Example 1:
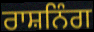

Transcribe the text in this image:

ਰਾਸ਼ਨਿੰਗ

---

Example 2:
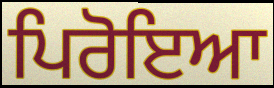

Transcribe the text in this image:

ਪਿਰੋਇਆ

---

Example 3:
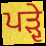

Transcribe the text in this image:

ਪੜ੍ਦੇ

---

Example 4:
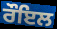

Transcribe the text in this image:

ਰੌਇਲ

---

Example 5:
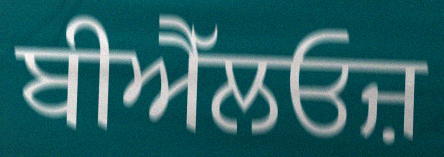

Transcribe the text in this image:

ਬੀਐੱਲਓਜ਼